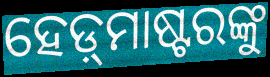
ହେଡ଼୍‌ମାଷ୍ଟରଙ୍କୁ